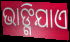
ଭାଙ୍ଗିଯାଏ